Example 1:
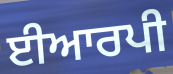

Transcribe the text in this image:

ਈਆਰਪੀ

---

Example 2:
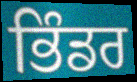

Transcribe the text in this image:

ਭਿੰਡਰ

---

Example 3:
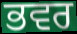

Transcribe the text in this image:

ਭਵਰ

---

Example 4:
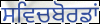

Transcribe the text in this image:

ਸਵਿਚਬੋਰਡਾਂ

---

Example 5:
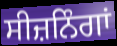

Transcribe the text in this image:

ਸੀਜ਼ਨਿੰਗਾਂ